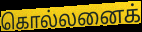
கொல்லனைக்